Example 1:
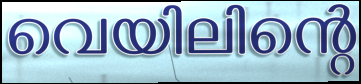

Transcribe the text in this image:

വെയിലിന്റെ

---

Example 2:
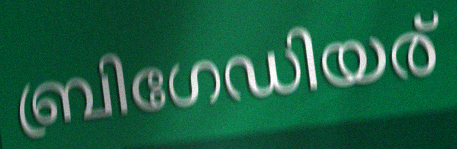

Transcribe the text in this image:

ബ്രിഗേഡിയര്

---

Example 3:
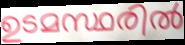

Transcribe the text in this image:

ഉടമസ്ഥരിൽ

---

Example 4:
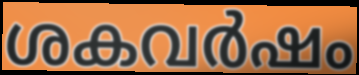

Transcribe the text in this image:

ശകവർഷം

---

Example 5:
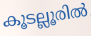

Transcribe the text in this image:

കൂടല്ലൂരിൽ